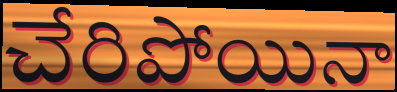
చేరిపోయినా